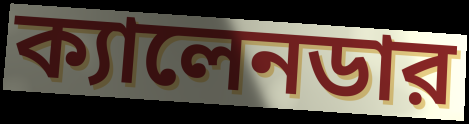
ক্যালেনডার